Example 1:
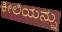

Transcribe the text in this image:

ಕೀಲಿಯನ್ನು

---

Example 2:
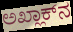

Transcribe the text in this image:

ಅಖ್ಲಾಕ್‍ನ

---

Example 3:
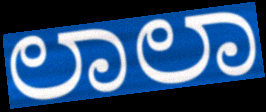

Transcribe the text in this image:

ಲಾಲಾ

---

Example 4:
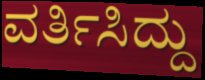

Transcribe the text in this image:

ವರ್ತಿಸಿದ್ದು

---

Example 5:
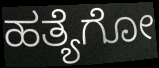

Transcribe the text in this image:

ಹತ್ಯೆಗೋ